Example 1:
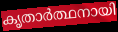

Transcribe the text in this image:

കൃതാർത്ഥനായി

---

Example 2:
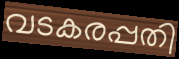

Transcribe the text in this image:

വടകരപ്പതി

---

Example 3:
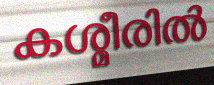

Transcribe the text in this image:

കശ്മീരിൽ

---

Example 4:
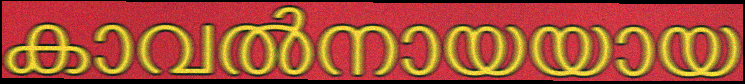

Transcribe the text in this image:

കാവൽനായയായ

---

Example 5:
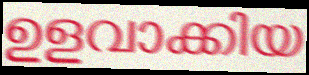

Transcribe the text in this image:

ഉളവാക്കിയ